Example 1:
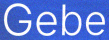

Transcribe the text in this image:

Gebe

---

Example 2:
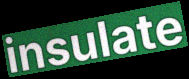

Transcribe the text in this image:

insulate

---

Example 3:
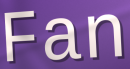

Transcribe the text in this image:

Fan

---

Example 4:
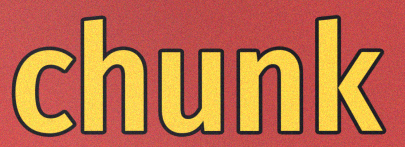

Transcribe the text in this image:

chunk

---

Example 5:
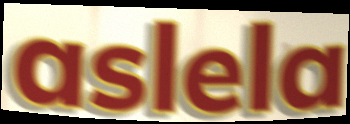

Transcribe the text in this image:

aslela